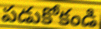
పడుకోకండి